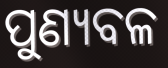
ପୁଣ୍ୟବଳ